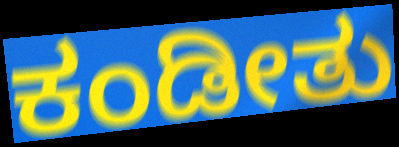
ಕಂಡೀತು